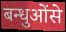
बन्धुओंसे